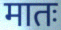
मातः